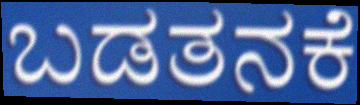
ಬಡತನಕೆ